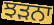
ਝੜਨਾ